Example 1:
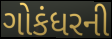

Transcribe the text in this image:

ગોકંધરની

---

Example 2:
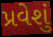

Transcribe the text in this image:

પ્રવેશું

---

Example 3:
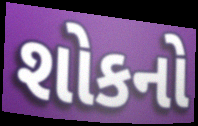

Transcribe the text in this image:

શોકનો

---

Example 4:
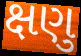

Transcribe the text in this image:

ક્ષણુ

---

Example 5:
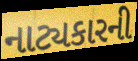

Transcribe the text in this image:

નાટ્યકારની